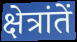
क्षेत्रांतें